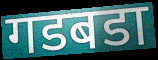
गडबडा